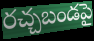
రచ్చబండపై